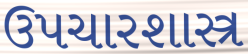
ઉપચારશાસ્ત્ર